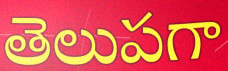
తెలుపగా